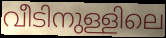
വീടിനുള്ളിലെ